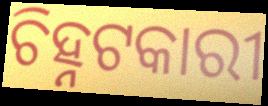
ଚିହ୍ନଟକାରୀ